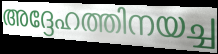
അദ്ദേഹത്തിനയച്ച